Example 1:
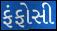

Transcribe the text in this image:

ફંફોસી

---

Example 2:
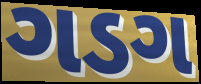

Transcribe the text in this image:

ગડગ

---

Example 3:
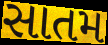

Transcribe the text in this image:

સાતમ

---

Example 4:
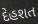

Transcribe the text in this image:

દેહશત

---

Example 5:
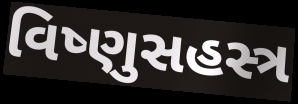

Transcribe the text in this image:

વિષ્ણુસહસ્ત્ર